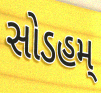
સોડહમ્